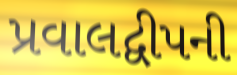
પ્રવાલદ્વીપની